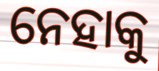
ନେହାକୁ